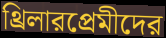
থ্রিলারপ্রেমীদের